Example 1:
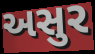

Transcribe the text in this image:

અસુર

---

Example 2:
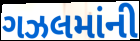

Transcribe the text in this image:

ગઝલમાંની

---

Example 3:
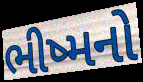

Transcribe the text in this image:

ભીષ્મનો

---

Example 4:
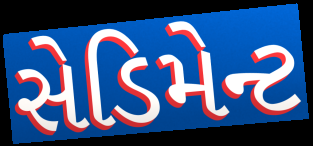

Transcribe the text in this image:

સેડિમેન્ટ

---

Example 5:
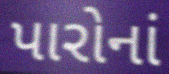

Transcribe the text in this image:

પારોનાં